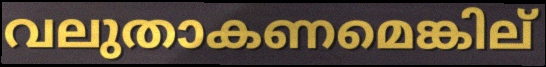
വലുതാകണമെങ്കില്